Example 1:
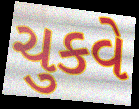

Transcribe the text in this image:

ચુકવે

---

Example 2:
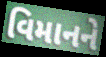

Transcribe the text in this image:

વિમાનને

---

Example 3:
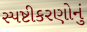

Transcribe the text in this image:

સ્પષ્ટીકરણોનું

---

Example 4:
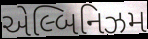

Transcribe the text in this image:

એલ્બિનિઝમ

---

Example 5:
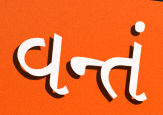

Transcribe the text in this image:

વન્તં